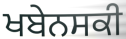
ਖਬੇਨਸਕੀ